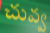
చువ్వ